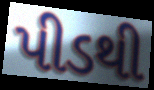
પીડથી